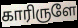
காரிருளே